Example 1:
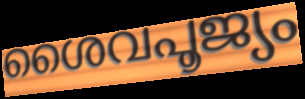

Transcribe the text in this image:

ശൈവപൂജ്യം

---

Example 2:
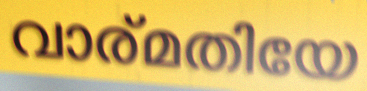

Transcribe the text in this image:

വാര്മതിയേ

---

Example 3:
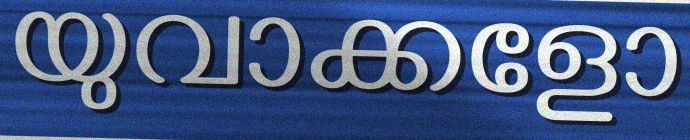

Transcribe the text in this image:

യുവാക്കളോ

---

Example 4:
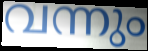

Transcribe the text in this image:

വന്നും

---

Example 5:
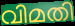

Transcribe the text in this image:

വിമതി